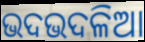
ଭଦଭଦଳିଆ